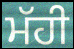
ਮੱਹੀ